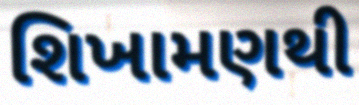
શિખામણથી